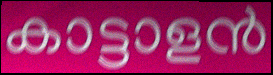
കാട്ടാളൻ